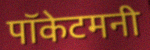
पॉकेटमनी